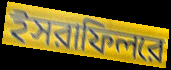
ইসরাফিলরে